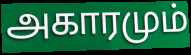
அகாரமும்